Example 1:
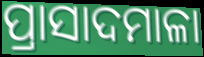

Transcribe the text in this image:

ପ୍ରାସାଦମାଳା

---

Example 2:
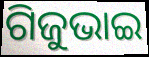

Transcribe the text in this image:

ଗିଜୁଭାଇ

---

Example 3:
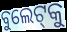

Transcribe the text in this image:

ବୁଲେଟ୍‌କୁ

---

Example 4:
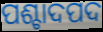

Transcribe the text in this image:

ପଶ୍ଚାଦପଦ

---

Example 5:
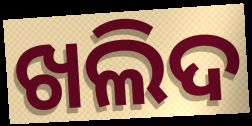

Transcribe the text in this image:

ଖଲିଦ